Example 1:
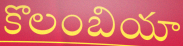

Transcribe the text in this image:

కొలంబియా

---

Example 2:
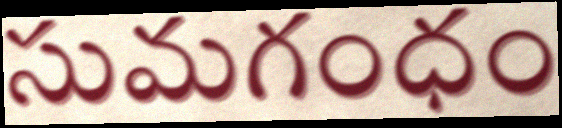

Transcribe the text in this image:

సుమగంధం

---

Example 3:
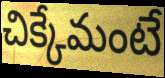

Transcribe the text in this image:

చిక్కేమంటే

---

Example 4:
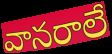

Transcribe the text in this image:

వానరాలే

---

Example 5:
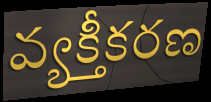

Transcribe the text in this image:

వ్యక్తీకరణ